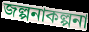
জল্পনাকল্পনা